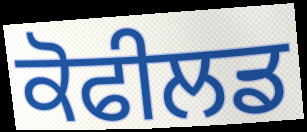
ਕੋਫੀਲਡ